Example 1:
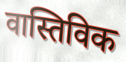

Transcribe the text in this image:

वास्तिविक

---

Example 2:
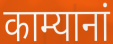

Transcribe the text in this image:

काम्यानां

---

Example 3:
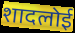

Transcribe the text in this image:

शादलोई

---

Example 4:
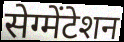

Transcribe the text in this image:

सेग्मेंटेशन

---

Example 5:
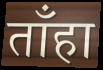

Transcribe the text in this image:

ताँहा